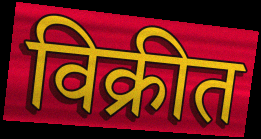
विक्रीत